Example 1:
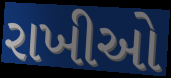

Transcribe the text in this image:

રાખીઓ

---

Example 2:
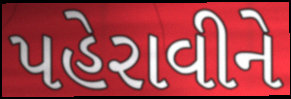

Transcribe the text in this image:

પહેરાવીને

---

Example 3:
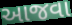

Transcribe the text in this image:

આજવા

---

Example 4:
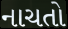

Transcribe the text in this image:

નાચતો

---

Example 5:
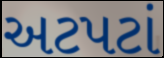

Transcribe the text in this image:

અટપટાં